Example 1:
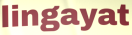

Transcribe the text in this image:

lingayat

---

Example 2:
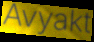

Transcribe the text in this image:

Avyakt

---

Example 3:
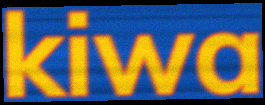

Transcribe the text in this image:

kiwa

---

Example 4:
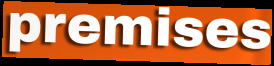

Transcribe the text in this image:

premises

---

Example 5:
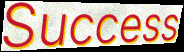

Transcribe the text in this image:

Success